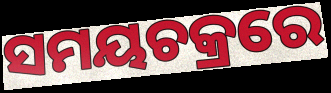
ସମୟଚକ୍ରରେ